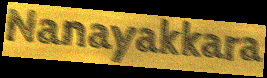
Nanayakkara